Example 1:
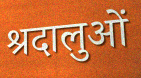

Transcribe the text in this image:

श्रदालुओं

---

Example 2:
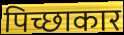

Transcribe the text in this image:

पिच्छाकार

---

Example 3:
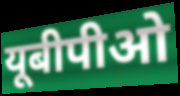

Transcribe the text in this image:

यूबीपीओ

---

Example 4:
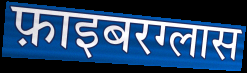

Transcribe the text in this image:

फ़ाइबरग्लास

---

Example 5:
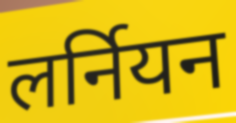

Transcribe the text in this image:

लर्नियन